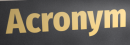
Acronym